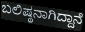
ಬಲಿಷ್ಠನಾಗಿದ್ದಾನೆ